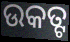
ଉକତ୍ଟ